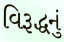
વિરૂદ્ધનું